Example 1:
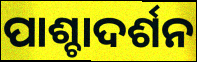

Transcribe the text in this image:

ପାଶ୍ଚାଦର୍ଶନ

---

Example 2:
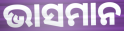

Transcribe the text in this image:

ଭାସମାନ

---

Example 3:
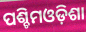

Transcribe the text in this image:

ପଶ୍ଚିମଓଡ଼ିଶା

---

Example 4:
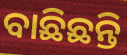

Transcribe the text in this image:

ବାଛିଛନ୍ତି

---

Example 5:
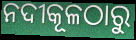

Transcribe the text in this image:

ନଦୀକୂଳଠାରୁ